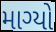
માગ્યો